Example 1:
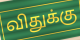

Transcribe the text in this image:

விதுக்கு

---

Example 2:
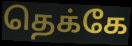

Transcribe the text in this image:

தெக்கே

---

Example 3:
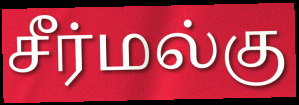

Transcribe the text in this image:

சீர்மல்கு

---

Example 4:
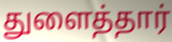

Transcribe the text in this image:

துளைத்தார்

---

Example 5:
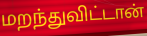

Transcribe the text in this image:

மறந்துவிட்டான்